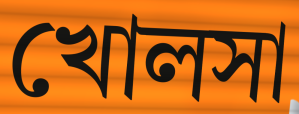
খোলসা